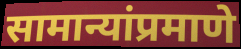
सामान्यांप्रमाणे